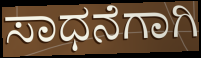
ಸಾಧನೆಗಾಗಿ